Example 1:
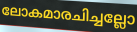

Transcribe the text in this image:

ലോകമാരചിച്ചല്ലോ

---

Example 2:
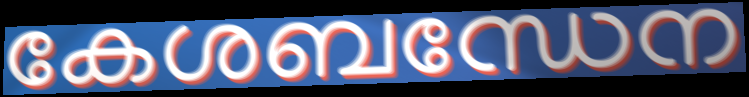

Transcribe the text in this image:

കേശബന്ധേന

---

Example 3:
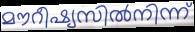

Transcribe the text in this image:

മൗറീഷ്യസിൽനിന്ന്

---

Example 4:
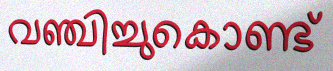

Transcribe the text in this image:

വഞ്ചിച്ചുകൊണ്ട്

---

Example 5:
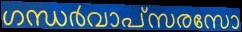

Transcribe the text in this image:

ഗന്ധർവാപ്സരസോ